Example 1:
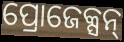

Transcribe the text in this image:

ପ୍ରୋଜେକ୍ସନ୍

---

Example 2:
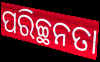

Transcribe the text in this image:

ପରିଚ୍ଛନତା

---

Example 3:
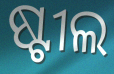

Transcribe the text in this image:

ଷ୍ଟୀଲ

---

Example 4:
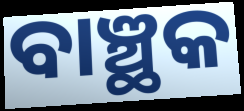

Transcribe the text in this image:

ବାଞ୍ଛକ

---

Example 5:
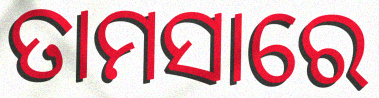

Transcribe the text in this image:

ତାମସାରେ